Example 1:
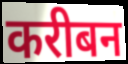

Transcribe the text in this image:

करीबन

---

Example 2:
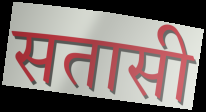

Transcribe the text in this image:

सतासी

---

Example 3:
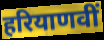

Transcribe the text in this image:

हरियाणवीं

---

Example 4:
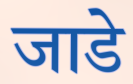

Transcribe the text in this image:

जाडे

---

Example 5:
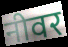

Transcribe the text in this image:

नीवर